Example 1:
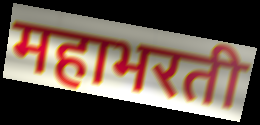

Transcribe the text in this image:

महाभरती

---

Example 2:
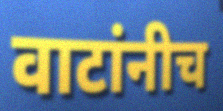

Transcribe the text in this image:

वाटांनीच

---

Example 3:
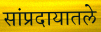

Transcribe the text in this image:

सांप्रदायातले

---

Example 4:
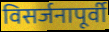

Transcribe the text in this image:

विसर्जनापूर्वी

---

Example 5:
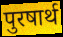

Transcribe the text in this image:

पुरषार्थ